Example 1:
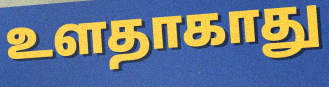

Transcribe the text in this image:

உளதாகாது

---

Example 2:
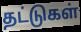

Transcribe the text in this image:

தட்டுகள்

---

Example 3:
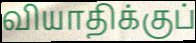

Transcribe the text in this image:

வியாதிக்குப்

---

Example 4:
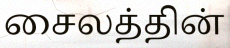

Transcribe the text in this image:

சைலத்தின்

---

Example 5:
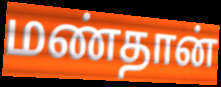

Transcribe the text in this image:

மண்தான்